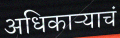
अधिकाऱ्याचं